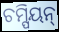
ଚମ୍ପିୟନ୍